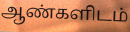
ஆண்களிடம்